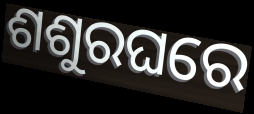
ଶଶୁରଘରେ